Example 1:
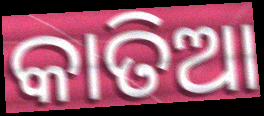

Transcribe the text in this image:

କାତିଆ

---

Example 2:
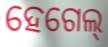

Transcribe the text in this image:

ହେଗେଲ୍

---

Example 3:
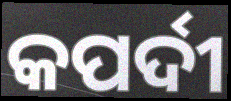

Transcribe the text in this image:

କପର୍ଦୀ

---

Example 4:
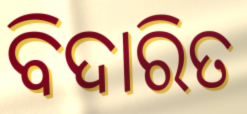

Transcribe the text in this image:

ବିଦାରିତ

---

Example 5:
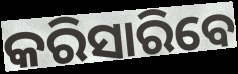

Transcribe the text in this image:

କରିସାରିବେ